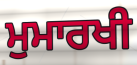
ਮੁਮਾਰਖੀ